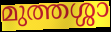
മുത്തശ്ശാ